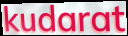
kudarat